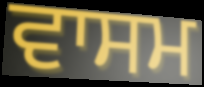
ਵਾਸਮ